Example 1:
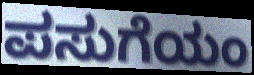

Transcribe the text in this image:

ಪಸುಗೆಯಂ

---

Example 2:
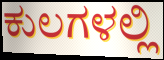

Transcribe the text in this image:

ಕುಲಗಳಲ್ಲಿ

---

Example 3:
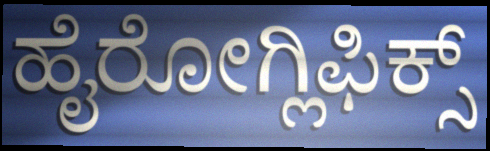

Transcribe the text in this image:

ಹೈರೋಗ್ಲಿಫಿಕ್ಸ್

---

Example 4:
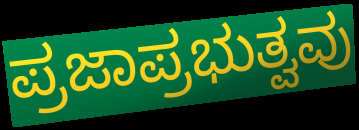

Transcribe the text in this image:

ಪ್ರಜಾಪ್ರಭುತ್ವವು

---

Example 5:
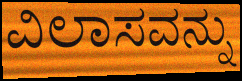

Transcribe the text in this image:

ವಿಲಾಸವನ್ನು